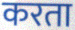
करता